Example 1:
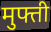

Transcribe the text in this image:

मुफ्ती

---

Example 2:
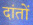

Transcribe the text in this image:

दांतों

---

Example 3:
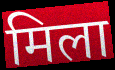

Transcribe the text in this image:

मिला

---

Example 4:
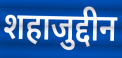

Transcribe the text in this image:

शहाजुद्दीन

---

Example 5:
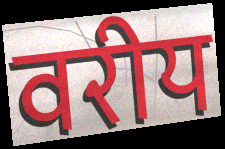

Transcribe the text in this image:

वरीय